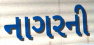
નાગરની